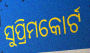
ସୁପ୍ରିମକୋର୍ଟ